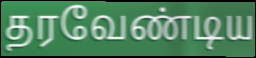
தரவேண்டிய